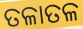
ତଳାତଳ